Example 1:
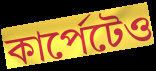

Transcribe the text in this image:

কার্পেটেও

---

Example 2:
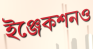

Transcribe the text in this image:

ইঞ্জেকশনও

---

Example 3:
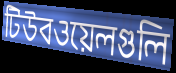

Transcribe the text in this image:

টিউবওয়েলগুলি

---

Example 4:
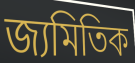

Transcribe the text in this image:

জ্যমিতিক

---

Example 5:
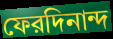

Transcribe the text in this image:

ফেরদিনান্দ